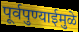
पूर्वपुण्याईमुळे